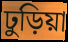
ঢুড়িয়া